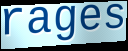
rages